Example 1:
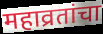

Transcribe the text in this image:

महाव्रतांचा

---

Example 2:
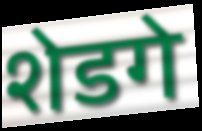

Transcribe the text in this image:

शेडगे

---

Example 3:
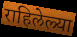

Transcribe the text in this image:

राहिलेल्या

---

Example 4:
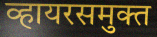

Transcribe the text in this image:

व्हायरसमुक्त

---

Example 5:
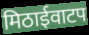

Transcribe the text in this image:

मिठाईवाटप